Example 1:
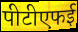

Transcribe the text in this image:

पीटीएफई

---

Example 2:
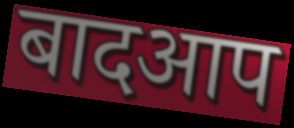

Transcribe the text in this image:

बादआप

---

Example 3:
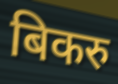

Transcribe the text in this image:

बिकरु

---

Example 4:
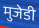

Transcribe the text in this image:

मुजेडी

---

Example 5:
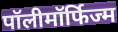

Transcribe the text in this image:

पॉलीमॉर्फिज्म